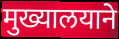
मुख्यालयाने